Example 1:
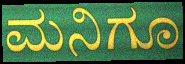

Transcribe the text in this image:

ಮನಿಗೂ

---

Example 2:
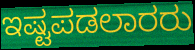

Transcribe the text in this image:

ಇಷ್ಟಪಡಲಾರರು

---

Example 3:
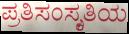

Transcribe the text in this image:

ಪ್ರತಿಸಂಸ್ಕೃತಿಯ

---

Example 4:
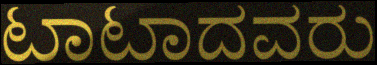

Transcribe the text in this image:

ಟಾಟಾದವರು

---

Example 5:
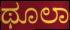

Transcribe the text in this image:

ಥೂಲಾ